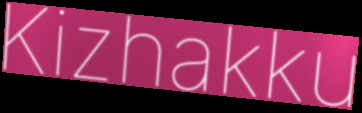
Kizhakku